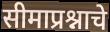
सीमाप्रश्नाचे